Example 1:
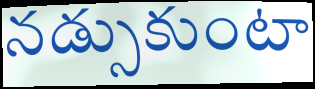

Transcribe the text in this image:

నడ్సుకుంటా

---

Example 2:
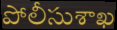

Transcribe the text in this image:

పోలీసుశాఖ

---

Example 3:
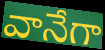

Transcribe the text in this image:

వానేగా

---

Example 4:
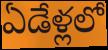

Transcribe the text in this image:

ఏడేళ్లలో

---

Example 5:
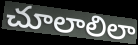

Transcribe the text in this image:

చూలాలిలా